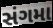
સંગમા